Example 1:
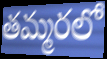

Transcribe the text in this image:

తమ్మరలో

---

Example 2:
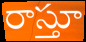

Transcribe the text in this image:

రాస్తూ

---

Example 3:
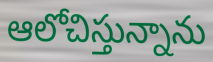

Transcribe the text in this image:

ఆలోచిస్తున్నాను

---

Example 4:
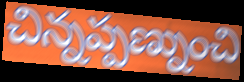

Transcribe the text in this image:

చిన్నప్పణ్నుంచి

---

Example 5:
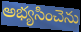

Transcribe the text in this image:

అభ్యసించెను